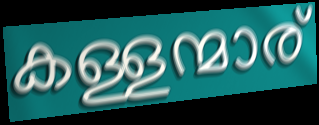
കള്ളന്മാര്